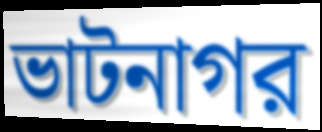
ভাটনাগর